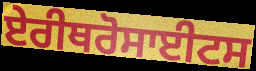
ਏਰੀਥਰੋਸਾਈਟਸ